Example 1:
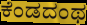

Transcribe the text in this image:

ಕೆಂಡದಂಥ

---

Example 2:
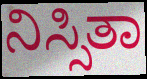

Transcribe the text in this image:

ನಿಸ್ಸಿತಾ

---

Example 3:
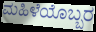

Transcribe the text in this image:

ಮಹಿಳೆಯೊಬ್ಬರ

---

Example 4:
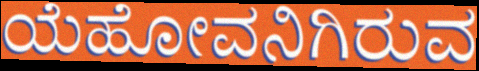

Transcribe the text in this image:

ಯೆಹೋವನಿಗಿರುವ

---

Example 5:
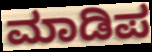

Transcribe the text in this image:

ಮಾಡಿಪ